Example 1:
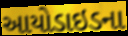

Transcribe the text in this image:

આયોડાઇડના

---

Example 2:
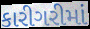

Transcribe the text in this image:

કારીગરીમાં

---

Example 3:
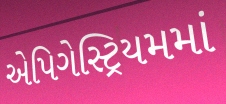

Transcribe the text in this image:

એપિગેસ્ટ્રિયમમાં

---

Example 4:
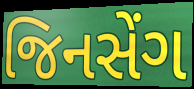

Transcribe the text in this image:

જિનસેંગ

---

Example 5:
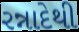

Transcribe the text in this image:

રન્નાદેથી